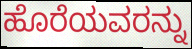
ಹೊರೆಯವರನ್ನು